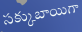
సక్కుబాయిగా